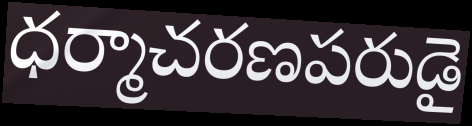
ధర్మాచరణపరుడై